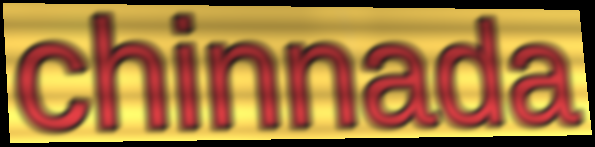
chinnada